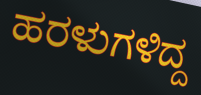
ಹರಳುಗಳಿದ್ದ